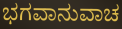
ಭಗವಾನುವಾಚ